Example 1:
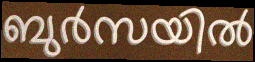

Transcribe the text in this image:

ബുർസയിൽ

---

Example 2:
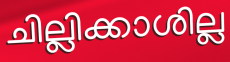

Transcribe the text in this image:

ചില്ലിക്കാശില്ല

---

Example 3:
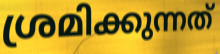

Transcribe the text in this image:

ശ്രമിക്കുന്നത്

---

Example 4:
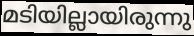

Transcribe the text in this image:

മടിയില്ലായിരുന്നു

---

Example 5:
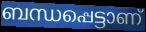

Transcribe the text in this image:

ബന്ധപ്പെട്ടാണ്